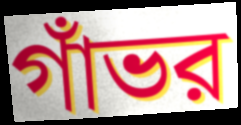
গাঁভর